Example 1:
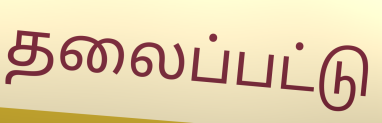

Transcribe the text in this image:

தலைப்பட்டு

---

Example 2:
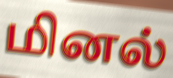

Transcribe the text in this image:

மினல்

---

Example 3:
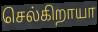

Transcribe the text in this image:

செல்கிறாயா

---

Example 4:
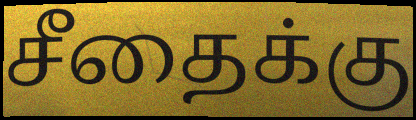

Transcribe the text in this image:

சீதைக்கு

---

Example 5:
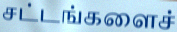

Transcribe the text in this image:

சட்டங்களைச்